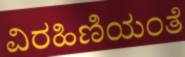
ವಿರಹಿಣಿಯಂತೆ